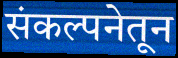
संकल्पनेतून